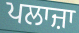
ਪਲਾਜ਼ਾ